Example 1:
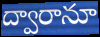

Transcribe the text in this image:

ద్వారానూ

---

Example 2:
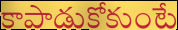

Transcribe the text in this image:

కాపాడుకోకుంటే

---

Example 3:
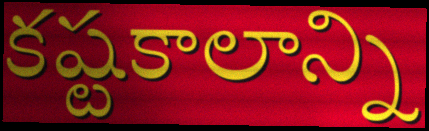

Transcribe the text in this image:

కష్టకాలాన్ని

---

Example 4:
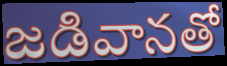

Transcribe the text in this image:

జడివానతో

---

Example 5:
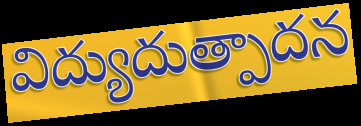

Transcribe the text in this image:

విద్యుదుత్పాదన